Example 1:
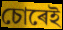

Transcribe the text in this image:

চোৰেই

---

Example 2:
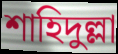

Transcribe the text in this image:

শাহিদুল্লা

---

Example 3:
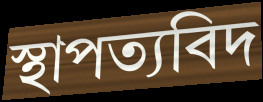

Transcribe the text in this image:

স্থাপত্যবিদ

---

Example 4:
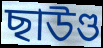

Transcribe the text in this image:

ছাউণ্ড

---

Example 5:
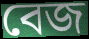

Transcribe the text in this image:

বেজ